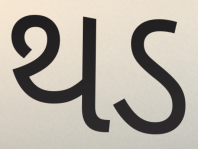
થડ